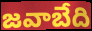
జవాబేది